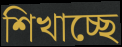
শিখাচ্ছে